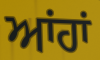
ਆਂਹਾਂ